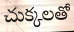
చుక్కలతో